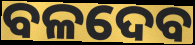
ବଳଦେବ